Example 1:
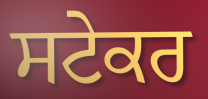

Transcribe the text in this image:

ਸਟੇਕਰ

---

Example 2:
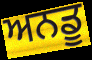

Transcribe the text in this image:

ਅਨਡੂ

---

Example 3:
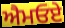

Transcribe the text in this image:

ਐਮਓਏ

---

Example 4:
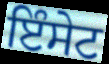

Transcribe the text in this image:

ਇੰਸੇਟ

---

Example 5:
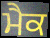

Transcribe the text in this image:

ਮੈਕ